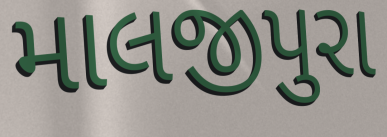
માલજીપુરા